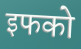
इफको